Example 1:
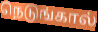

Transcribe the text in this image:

நெடுங்கால்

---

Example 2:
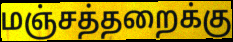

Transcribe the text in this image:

மஞ்சத்தறைக்கு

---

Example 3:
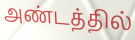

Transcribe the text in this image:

அண்டத்தில்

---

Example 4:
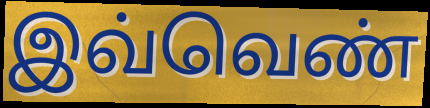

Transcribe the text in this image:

இவ்வெண்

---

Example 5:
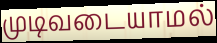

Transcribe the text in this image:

முடிவடையாமல்